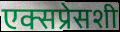
एक्सप्रेसशी